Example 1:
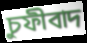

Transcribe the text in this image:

চুফীবাদ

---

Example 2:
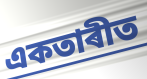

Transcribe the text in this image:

একতাৰীত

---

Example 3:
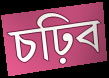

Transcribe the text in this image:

চঢ়িব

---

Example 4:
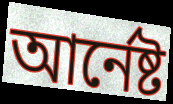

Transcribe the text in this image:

আৰ্নেষ্ট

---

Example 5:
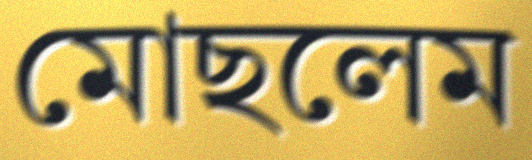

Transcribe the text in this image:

মোছলেম